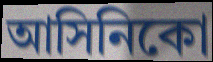
আসিনিকো